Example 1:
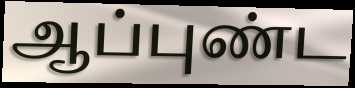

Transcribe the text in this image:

ஆப்புண்ட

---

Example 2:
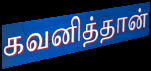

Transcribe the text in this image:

கவனித்தான்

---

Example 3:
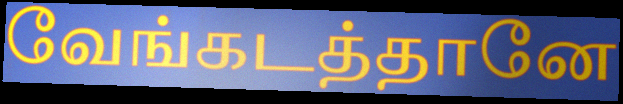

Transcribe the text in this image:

வேங்கடத்தானே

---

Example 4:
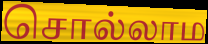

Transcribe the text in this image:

சொல்லாம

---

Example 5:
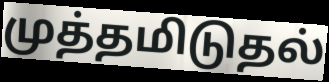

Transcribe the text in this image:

முத்தமிடுதல்